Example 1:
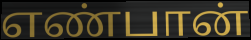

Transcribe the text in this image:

எண்பான்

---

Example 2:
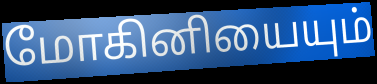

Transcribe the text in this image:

மோகினியையும்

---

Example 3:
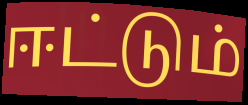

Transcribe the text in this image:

ஈட்டும்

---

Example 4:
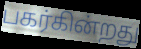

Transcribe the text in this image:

பகர்கின்றது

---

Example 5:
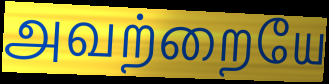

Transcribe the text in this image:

அவற்றையே